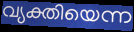
വ്യക്തിയെന്ന